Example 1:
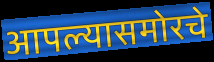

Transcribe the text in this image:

आपल्यासमोरचे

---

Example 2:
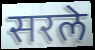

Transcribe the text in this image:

सरले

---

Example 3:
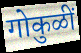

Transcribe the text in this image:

गोकुळीं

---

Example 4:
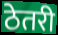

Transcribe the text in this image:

ठेतरी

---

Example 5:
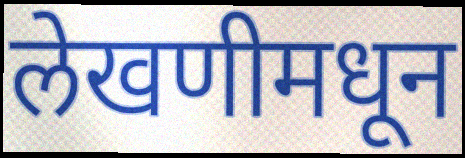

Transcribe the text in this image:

लेखणीमधून